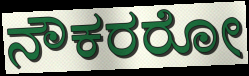
ನೌಕರರೋ